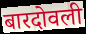
बारदोवली